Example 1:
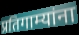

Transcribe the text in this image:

प्रतिगाम्यांना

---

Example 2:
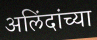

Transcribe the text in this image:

अलिंदांच्या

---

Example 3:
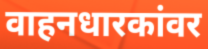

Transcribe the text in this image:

वाहनधारकांवर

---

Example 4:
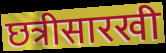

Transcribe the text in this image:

छत्रीसारखी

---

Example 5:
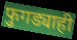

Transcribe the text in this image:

फुगड्याही